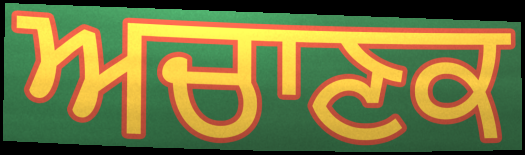
ਅਚਾਣਕ